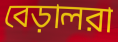
বেড়ালরা